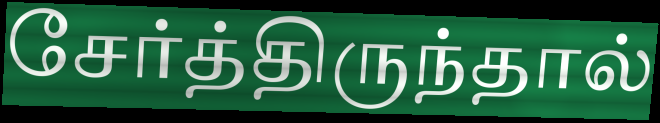
சேர்த்திருந்தால்